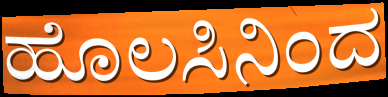
ಹೊಲಸಿನಿಂದ